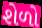
શેળો